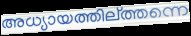
അധ്യായത്തില്ത്തന്നെ